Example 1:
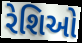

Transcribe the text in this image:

રેશિઓ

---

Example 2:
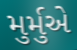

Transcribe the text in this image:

મુર્મુએ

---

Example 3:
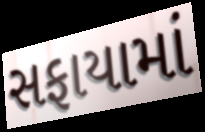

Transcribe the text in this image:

સફાયામાં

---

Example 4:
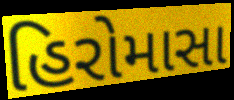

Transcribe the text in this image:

હિરોમાસા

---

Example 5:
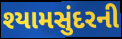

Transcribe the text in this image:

શ્યામસુંદરની